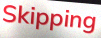
Skipping